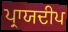
ਪ੍ਰਾਯਦੀਪ